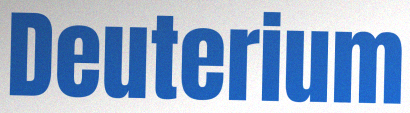
Deuterium